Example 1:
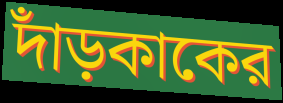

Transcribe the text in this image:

দাঁড়কাকের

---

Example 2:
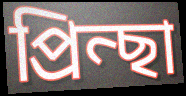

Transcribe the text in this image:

প্রিন্ছা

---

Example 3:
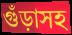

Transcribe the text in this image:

গুঁড়াসহ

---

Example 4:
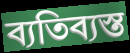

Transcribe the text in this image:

ব্যতিব্যস্ত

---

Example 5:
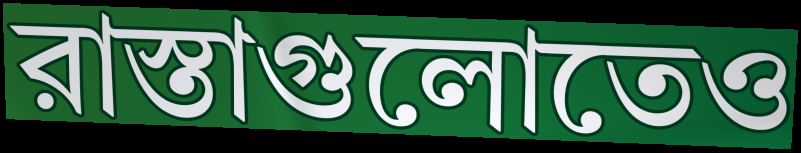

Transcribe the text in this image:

রাস্তাগুলোতেও